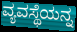
ವ್ಯವಸ್ಥೆಯನ್ನ